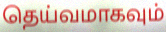
தெய்வமாகவும்